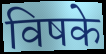
विषके